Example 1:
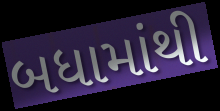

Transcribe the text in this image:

બધામાંથી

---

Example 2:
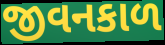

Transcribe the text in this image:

જીવનકાળ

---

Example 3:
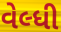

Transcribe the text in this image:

વેલ્ધી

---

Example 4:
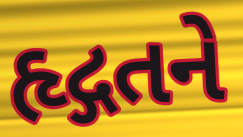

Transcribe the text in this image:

હૃદ્ગતને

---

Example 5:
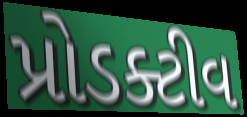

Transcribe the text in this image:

પ્રોડક્ટીવ